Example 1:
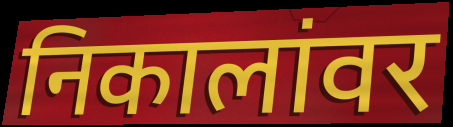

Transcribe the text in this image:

निकालांवर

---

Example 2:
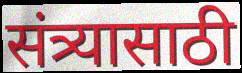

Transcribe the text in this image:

संत्र्यासाठी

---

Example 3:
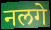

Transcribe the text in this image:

नलगे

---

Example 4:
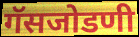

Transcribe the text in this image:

गॅसजोडणी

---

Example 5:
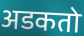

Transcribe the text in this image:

अडकतो